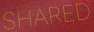
SHARED